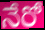
నేరో